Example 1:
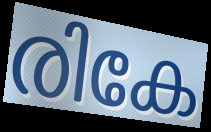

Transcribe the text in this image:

രികേ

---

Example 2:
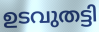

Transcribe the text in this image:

ഉടവുതട്ടി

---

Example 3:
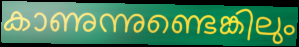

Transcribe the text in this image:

കാണുന്നുണ്ടെങ്കിലും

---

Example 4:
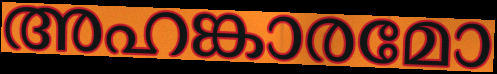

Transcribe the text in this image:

അഹങ്കാരമോ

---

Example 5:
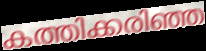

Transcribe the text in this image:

കത്തിക്കരിഞ്ഞ